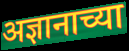
अज्ञानाच्या